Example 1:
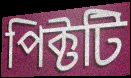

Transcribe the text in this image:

পিক্টটি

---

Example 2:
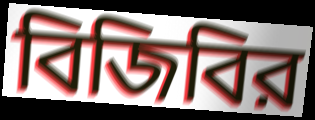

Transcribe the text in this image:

বিজিবির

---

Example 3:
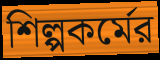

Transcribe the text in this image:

শিল্পকর্মের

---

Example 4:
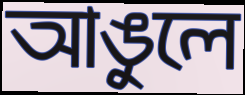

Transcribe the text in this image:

আঙুলে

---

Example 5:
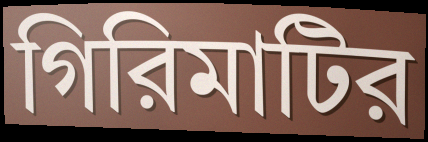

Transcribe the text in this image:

গিরিমাটির